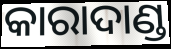
କାରାଦାଣ୍ଡ